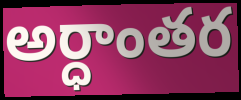
అర్ధాంతర